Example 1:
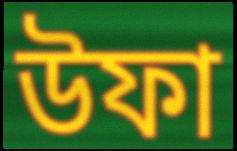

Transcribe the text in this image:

উফা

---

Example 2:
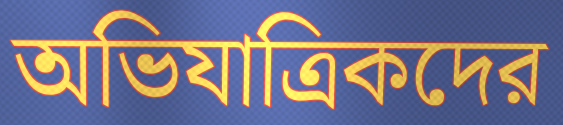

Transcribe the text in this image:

অভিযাত্রিকদের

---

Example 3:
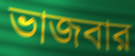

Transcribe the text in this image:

ভাজবার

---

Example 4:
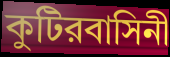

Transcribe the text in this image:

কুটিরবাসিনী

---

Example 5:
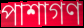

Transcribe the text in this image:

পাশাগণ